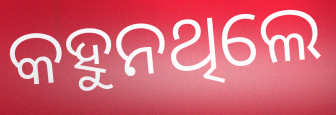
କହୁନଥିଲେ